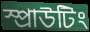
স্প্রাউটিং